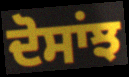
ਦੋਸਾਂਝ